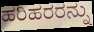
ಹರಿಹರರನ್ನು